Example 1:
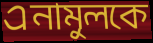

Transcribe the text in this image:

এনামুলকে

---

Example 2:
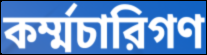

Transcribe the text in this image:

কর্ম্মচারিগণ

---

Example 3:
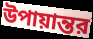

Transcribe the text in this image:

উপায়ান্তর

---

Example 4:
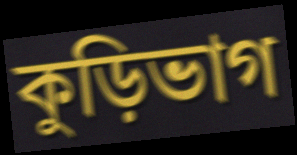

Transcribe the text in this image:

কুড়িভাগ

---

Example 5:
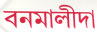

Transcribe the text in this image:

বনমালীদা